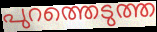
പുറത്തെടുത്ത